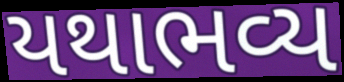
યથાભવ્ય